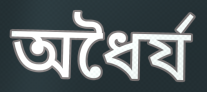
অধৈর্য